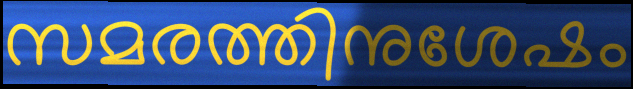
സമരത്തിനുശേഷം